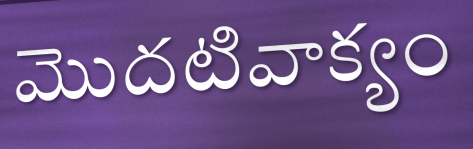
మొదటివాక్యం